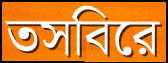
তসবিরে